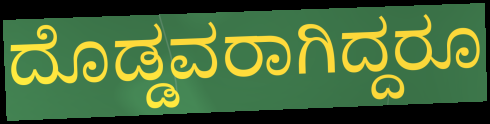
ದೊಡ್ಡವರಾಗಿದ್ದರೂ